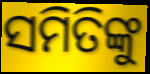
ସମିତିଙ୍କୁ